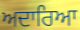
ਅਦਾਰਿਆ